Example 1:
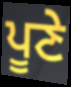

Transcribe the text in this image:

ਪੂਣੇ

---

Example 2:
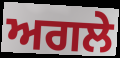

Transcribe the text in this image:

ਅਗਲੇ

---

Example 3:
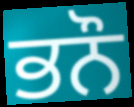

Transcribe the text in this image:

ਭਨੌ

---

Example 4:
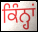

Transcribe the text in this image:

ਕਿੰਨ੍ਹਾਂ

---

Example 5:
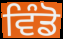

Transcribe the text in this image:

ਵਿੰਡੋ